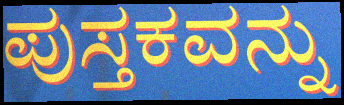
ಪುಸ್ತಕವನ್ನು